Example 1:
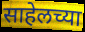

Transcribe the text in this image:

साहेलच्या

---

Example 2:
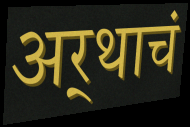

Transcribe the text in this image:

अर्थाचं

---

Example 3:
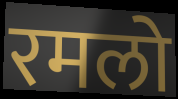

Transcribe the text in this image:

रमलो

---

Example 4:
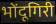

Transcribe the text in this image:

भोंदूगिरी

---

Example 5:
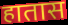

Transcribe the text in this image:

हातास